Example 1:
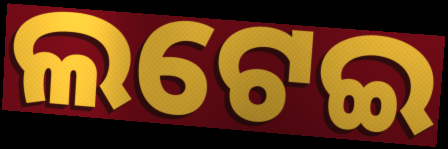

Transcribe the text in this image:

ଲଟେଇ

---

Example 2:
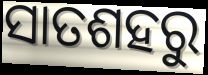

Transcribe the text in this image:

ସାତଶହରୁ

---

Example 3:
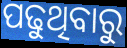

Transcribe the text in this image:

ପଢୁଥିବାରୁ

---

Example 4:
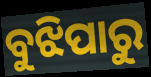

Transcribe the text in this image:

ବୁଝିପାରୁ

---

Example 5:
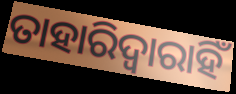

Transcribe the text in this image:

ତାହାରିଦ୍ୱାରାହିଁ